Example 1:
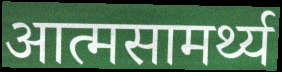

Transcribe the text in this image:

आत्मसामर्थ्य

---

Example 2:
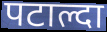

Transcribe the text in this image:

पटाल्दा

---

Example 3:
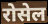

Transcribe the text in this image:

रोसेल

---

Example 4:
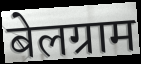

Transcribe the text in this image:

बेलग्राम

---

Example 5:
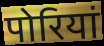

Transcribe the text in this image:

पोरियां